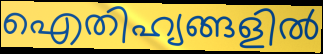
ഐതിഹ്യങ്ങളിൽ